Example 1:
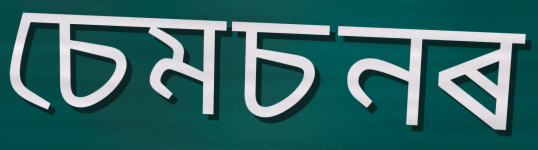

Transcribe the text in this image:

চেমচনৰ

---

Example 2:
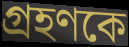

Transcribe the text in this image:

গ্ৰহণকে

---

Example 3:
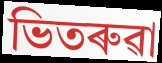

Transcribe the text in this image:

ভিতৰুৱা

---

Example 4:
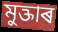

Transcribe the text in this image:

মুক্তাৰ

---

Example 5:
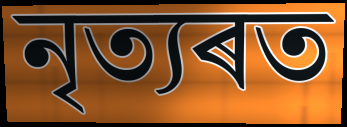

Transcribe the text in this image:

নৃত্যৰত